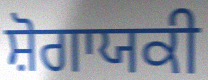
ਸ਼ੋਗਾਯਕੀ